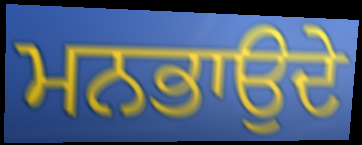
ਮਨਭਾਉਦੇ